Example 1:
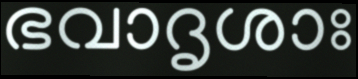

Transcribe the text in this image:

ഭവാദൃശാഃ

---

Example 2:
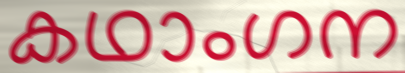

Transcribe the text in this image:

കഥാംഗന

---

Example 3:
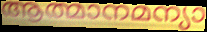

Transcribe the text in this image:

ആത്മാനമന്യാ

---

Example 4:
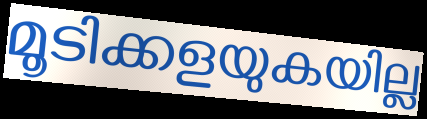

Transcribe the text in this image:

മൂടിക്കളയുകയില്ല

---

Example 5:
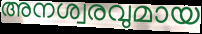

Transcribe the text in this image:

അനശ്വരവുമായ